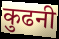
कुढनी